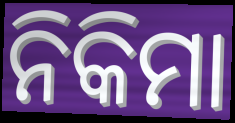
ନିକିମା